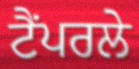
ਟੈਂਪਰਲੇ